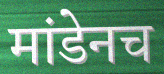
मांडेनच